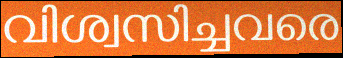
വിശ്വസിച്ചവരെ